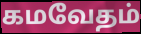
கமவேதம்